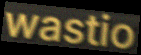
wastio